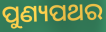
ପୁଣ୍ୟପଥର